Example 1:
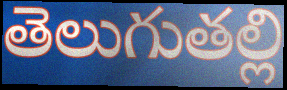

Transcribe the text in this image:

తెలుగుతల్లి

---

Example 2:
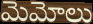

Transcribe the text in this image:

మెమోలు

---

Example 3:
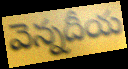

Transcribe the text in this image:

వెన్నదీయ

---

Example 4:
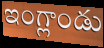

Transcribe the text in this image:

ఇంగ్లాండు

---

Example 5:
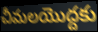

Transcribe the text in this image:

చీమలయొద్దకు